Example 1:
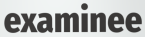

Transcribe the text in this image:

examinee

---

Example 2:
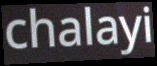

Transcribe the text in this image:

chalayi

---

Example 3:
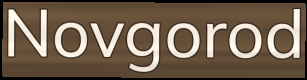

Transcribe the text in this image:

Novgorod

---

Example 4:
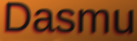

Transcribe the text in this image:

Dasmu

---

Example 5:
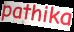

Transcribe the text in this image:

pathika